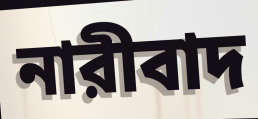
নারীবাদ